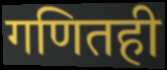
गणितही